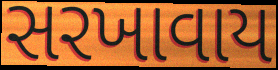
સરખાવાય